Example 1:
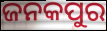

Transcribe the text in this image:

ଜନକପୁର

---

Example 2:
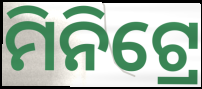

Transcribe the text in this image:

ମିନିଟ୍ରେ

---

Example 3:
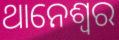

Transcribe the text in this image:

ଥାନେଶ୍ୱର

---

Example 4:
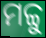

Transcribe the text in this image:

ମଚ୍ଚୁ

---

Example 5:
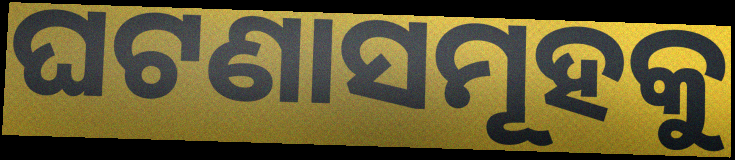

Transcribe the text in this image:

ଘଟଣାସମୂହକୁ